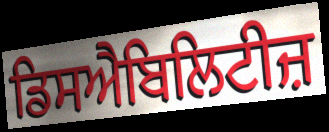
ਡਿਸਐਬਿਲਿਟੀਜ਼